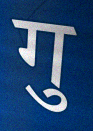
गु